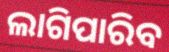
ଲାଗିପାରିବ